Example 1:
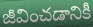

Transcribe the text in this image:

జీవించడానికీ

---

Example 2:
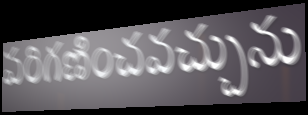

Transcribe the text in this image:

పరిగణించవచ్చును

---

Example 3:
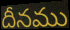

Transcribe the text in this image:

దీనము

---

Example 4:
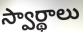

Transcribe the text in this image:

స్వార్థాలు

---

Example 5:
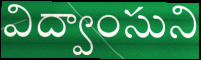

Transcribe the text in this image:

విద్వాంసుని